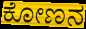
ಕೋಣನ